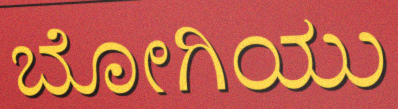
ಬೋಗಿಯು